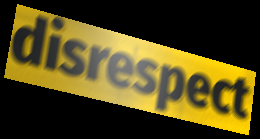
disrespect